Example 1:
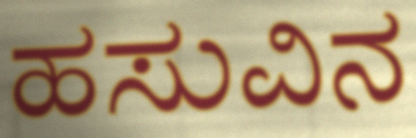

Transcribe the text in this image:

ಹಸುವಿನ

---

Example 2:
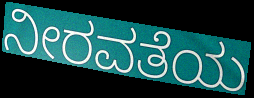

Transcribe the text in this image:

ನೀರವತೆಯ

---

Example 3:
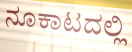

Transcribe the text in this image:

ನೂಕಾಟದಲ್ಲಿ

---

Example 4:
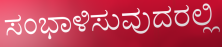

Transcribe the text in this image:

ಸಂಭಾಳಿಸುವುದರಲ್ಲಿ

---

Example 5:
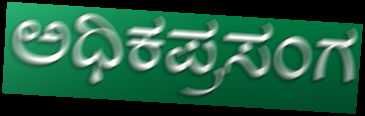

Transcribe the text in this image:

ಅಧಿಕಪ್ರಸಂಗ